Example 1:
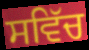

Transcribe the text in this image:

ਸਵਿੱਚ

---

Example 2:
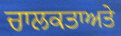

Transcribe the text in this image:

ਚਾਲਕਤਾਅਤੇ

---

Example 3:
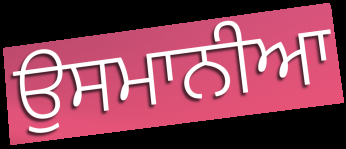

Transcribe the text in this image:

ਉਸਮਾਨੀਆ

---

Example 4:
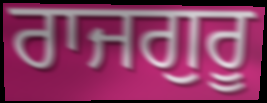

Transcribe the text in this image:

ਰਾਜਗੁਰੂ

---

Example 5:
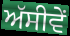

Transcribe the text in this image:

ਅੱਸੀਵੇਂ